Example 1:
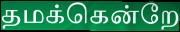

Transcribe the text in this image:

தமக்கென்றே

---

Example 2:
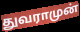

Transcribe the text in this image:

துவராமுன்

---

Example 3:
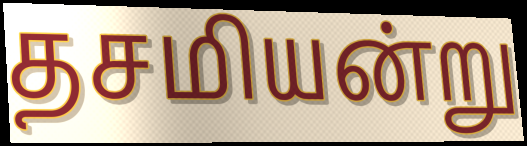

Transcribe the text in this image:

தசமியன்று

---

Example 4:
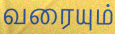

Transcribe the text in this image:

வரையும்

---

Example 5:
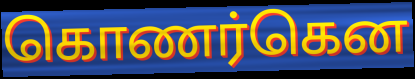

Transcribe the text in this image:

கொணர்கென